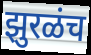
झुरळंच